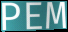
PEM